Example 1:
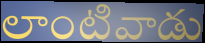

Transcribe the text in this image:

లాంటివాడు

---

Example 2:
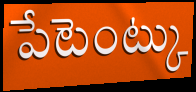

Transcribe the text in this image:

పేటెంట్కు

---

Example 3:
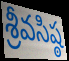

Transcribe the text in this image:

శ్రీవసిష్ఠ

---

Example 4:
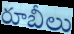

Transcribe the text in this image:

రూబీలు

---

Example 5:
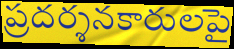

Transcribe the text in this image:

ప్రదర్శనకారులపై